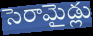
సెరామైడ్లు